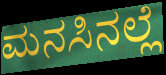
ಮನಸಿನಲ್ಲೆ